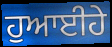
ਹੁਆਈਹੇ